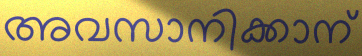
അവസാനിക്കാന്